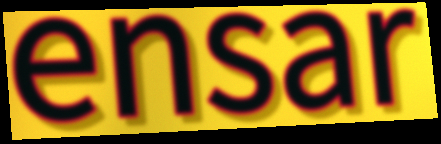
ensar